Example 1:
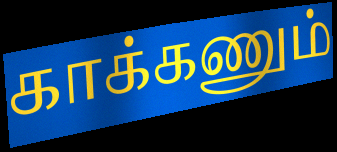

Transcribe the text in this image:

காக்கணும்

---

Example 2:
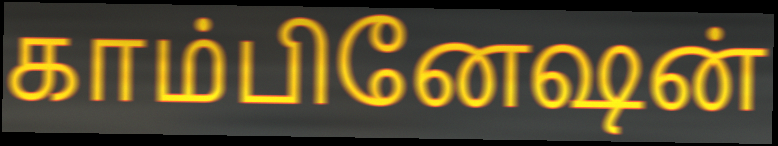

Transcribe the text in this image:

காம்பினேஷன்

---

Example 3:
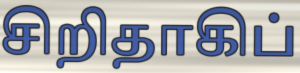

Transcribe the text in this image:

சிறிதாகிப்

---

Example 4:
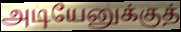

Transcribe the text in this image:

அடியேனுக்குத்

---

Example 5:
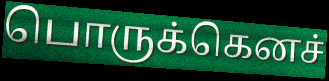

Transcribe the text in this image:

பொருக்கெனச்